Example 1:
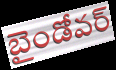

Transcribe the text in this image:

బైండోవర్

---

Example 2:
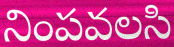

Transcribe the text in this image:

నింపవలసి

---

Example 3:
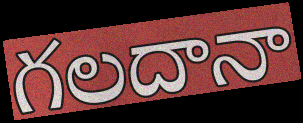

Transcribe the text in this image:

గలదానా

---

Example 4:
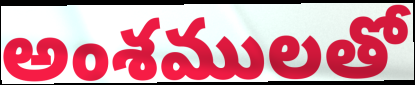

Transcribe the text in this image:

అంశములతో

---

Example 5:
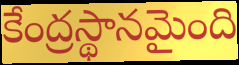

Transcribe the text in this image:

కేంద్రస్థానమైంది